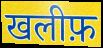
खलीफ़